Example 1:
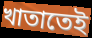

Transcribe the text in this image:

খাতাতেই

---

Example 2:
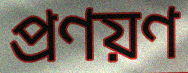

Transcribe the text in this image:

প্রণয়ণ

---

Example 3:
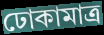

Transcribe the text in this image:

ঢোকামাত্র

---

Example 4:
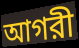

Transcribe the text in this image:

আগরী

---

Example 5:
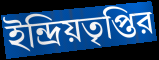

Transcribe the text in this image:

ইন্দ্রিয়তৃপ্তির